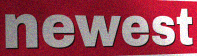
newest